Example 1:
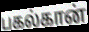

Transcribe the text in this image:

பகல்கான்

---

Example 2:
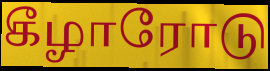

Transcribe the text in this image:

கீழாரோடு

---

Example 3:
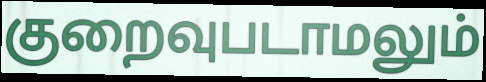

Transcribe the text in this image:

குறைவுபடாமலும்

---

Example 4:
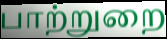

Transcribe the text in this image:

பாற்றுறை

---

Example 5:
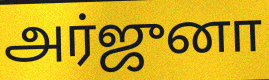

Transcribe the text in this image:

அர்ஜுனா